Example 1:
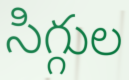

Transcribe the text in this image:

సిగ్గుల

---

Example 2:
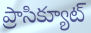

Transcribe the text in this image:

ప్రాసిక్యూట్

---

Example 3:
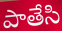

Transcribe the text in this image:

పాతేసి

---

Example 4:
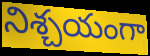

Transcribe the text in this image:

నిశ్చయంగా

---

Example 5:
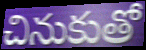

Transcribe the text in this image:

చినుకుతో